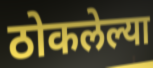
ठोकलेल्या